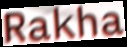
Rakha